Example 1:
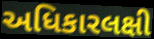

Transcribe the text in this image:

અધિકારલક્ષી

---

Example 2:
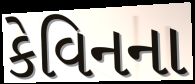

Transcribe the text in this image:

કેવિનના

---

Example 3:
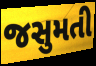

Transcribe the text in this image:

જસુમતી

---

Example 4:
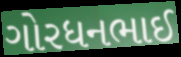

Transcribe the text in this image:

ગોરધનભાઈ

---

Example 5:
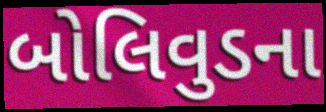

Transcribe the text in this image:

બોલિવુડના